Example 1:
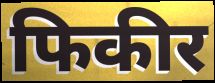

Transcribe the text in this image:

फिकीर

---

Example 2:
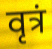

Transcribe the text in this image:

वृत्रं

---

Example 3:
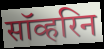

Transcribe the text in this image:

सॉव्हरिन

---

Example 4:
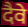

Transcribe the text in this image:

दैवे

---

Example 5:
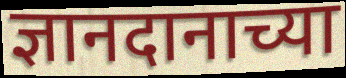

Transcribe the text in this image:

ज्ञानदानाच्या